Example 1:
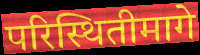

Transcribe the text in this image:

परिस्थितीमागे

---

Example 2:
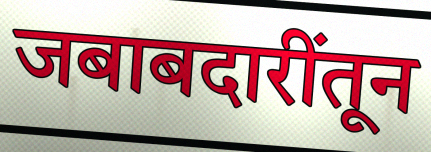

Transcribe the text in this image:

जबाबदारींतून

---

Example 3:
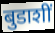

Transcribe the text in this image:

बुडाशीं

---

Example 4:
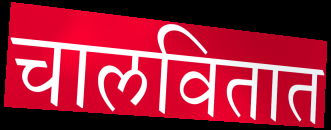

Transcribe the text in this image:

चालवितात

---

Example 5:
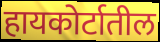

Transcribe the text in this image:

हायकोर्टातील